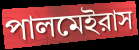
পালমেইরাস